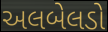
અલબેલડો